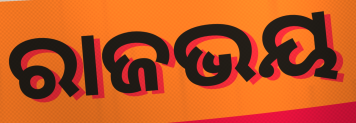
ରାଜଭୟ